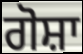
ਗੋਸ਼ਾ